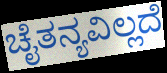
ಚೈತನ್ಯವಿಲ್ಲದೆ